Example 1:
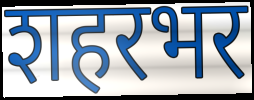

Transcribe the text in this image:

शहरभर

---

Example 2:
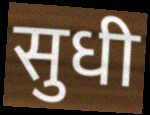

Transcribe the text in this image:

सुधी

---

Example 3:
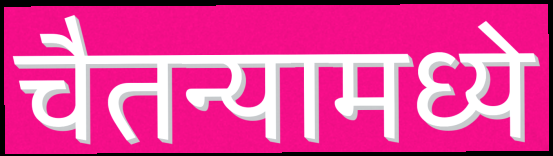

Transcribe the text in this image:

चैतन्यामध्ये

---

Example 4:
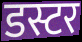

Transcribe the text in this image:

डस्टर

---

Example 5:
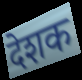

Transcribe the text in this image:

देशक